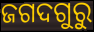
ଜଗଦଗୁରୁ